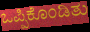
ಒಪ್ಪಿಕೊಂಡಿತು